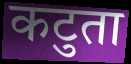
कटुता